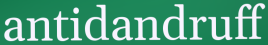
antidandruff